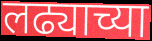
लढ्याच्या